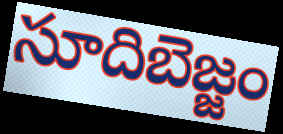
సూదిబెజ్జం